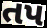
તપ